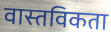
वास्तविकता